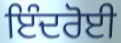
ਇੰਦਰੋਈ